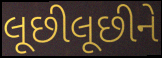
લૂછીલૂછીને